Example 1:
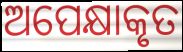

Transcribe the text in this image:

ଅପେକ୍ଷାକୃତ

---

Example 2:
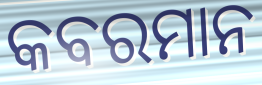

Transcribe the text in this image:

କବରମାନ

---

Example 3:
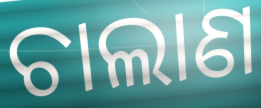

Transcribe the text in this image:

ଚାଲାଣ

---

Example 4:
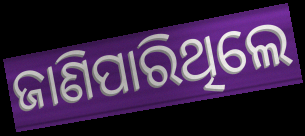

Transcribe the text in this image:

ଜାଣିପାରିଥିଲେ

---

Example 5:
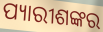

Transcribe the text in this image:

ପ୍ୟାରୀଶଙ୍କର